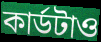
কার্ডটাও